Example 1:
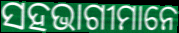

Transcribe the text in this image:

ସହଭାଗୀମାନେ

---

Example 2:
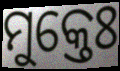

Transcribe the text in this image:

ମୁକ୍ତେଃ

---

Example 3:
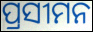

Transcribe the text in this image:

ପ୍ରସୀମନ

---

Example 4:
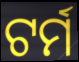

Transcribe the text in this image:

ଟର୍ମ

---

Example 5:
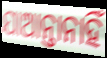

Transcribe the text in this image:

ଯାଆନ୍ତାନାହିଁ